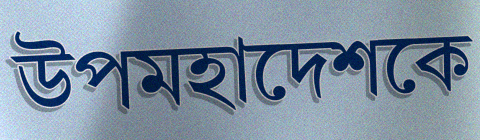
উপমহাদেশকে